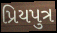
પ્રિયપુત્ર